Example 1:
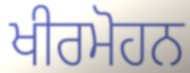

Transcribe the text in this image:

ਖੀਰਮੋਹਨ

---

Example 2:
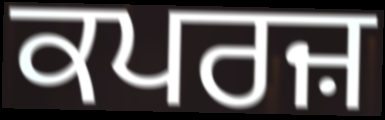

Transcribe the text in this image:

ਕਪਰਜ਼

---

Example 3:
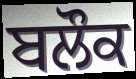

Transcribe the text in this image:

ਬਲੌਕ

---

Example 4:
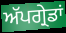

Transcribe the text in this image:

ਅੱਪਗ੍ਰੇਡਾਂ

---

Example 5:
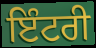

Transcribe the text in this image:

ਇੰਟਰੀ